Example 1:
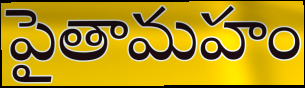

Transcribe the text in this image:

పైతామహం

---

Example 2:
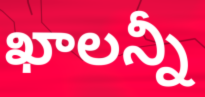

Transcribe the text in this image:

ఖాలన్నీ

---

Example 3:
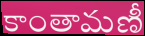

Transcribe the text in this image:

కాంతామణీ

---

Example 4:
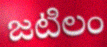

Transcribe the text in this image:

జటిలం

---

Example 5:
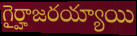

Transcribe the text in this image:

గైర్హాజరయ్యాయి